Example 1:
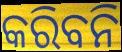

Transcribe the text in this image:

କରିବନି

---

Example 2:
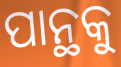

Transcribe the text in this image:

ପାନ୍ଥକୁ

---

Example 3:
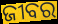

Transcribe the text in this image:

ଜୀବର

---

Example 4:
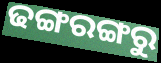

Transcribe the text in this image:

ଢଙ୍ଗରଙ୍ଗରୁ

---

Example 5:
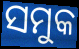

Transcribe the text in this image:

ସମୁକ